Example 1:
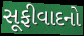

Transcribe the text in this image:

સૂફીવાદનો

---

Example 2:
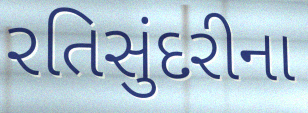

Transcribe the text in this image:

રતિસુંદરીના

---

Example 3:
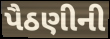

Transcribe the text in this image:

પૈઠણીની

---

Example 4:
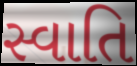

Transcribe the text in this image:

સ્વાતિ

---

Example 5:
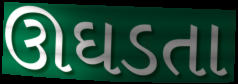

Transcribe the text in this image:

ઊઘડતા